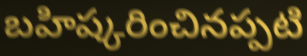
బహిష్కరించినప్పటి